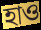
হাও